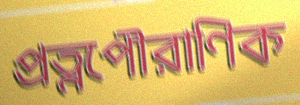
প্রত্নপৌরাণিক